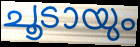
ചൂടായും